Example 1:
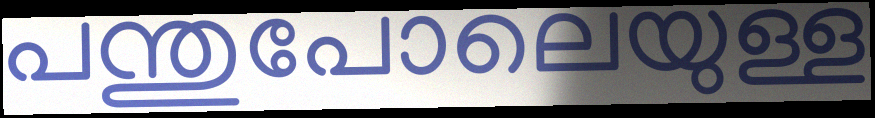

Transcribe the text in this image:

പന്തുപോലെയുള്ള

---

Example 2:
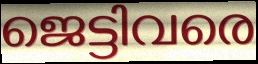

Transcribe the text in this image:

ജെട്ടിവരെ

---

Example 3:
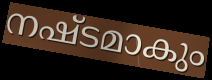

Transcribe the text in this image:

നഷ്ടമാകും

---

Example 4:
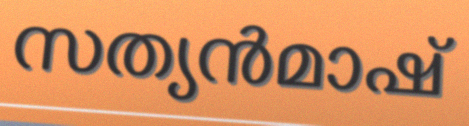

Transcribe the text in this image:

സത്യൻമാഷ്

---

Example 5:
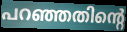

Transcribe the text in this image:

പറഞ്ഞതിന്റെ